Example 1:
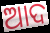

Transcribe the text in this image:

ଆଦ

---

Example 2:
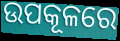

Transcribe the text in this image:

ଉପକୂଳରେ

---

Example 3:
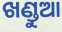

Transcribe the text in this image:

ଖଣ୍ଡୁଆ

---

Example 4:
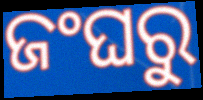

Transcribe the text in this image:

ଜଂଘରୁ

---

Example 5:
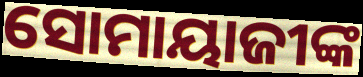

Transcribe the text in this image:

ସୋମାୟାଜୀଙ୍କ